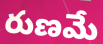
రుణమే